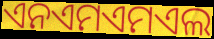
ଏନଏମଏମଏଲ